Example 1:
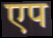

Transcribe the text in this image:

एप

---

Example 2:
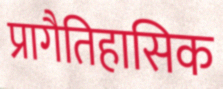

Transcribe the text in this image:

प्रागैतिहासिक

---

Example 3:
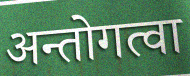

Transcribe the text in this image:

अन्तोगत्वा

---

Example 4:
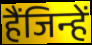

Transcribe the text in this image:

हैंजिन्हें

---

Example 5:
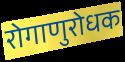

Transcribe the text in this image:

रोगाणुरोधक